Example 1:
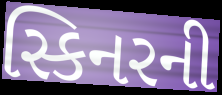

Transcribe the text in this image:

સ્કિનરની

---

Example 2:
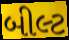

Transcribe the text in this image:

બીલ્ટ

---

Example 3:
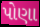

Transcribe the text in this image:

પોણા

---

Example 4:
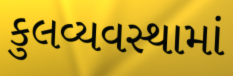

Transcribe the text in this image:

કુલવ્યવસ્થામાં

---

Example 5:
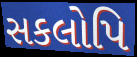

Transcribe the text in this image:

સકલોપિ